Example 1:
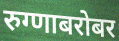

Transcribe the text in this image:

रुग्णाबरोबर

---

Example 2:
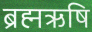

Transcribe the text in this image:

ब्रह्मऋषि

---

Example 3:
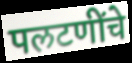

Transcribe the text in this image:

पलटणींचे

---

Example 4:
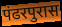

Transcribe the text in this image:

पंढरपुरास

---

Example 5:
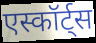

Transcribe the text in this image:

एस्कॉर्ट्स